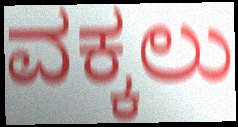
ವಕ್ಕಲು